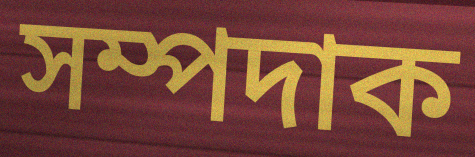
সম্পদাক